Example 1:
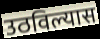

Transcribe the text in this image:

उठविल्यास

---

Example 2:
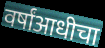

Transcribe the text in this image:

वर्षांआधीचा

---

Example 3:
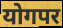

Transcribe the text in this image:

योगपर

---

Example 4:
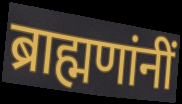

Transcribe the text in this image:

ब्राह्मणांनीं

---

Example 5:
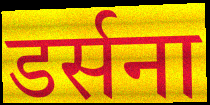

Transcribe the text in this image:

डर्सना